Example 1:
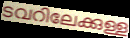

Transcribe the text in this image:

ടവറിലേക്കുള്ള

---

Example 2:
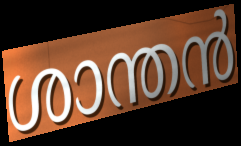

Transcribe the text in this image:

ശാന്തൻ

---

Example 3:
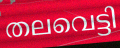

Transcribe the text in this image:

തലവെട്ടി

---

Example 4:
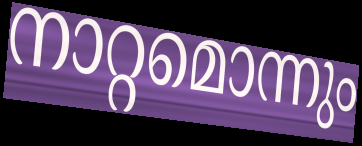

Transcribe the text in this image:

നാറ്റമൊന്നും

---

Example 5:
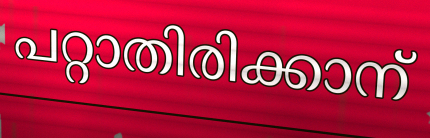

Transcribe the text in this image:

പറ്റാതിരിക്കാന്